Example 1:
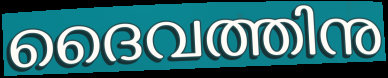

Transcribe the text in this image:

ദൈവത്തിനു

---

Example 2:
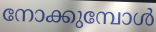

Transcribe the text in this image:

നോക്കുമ്പോൾ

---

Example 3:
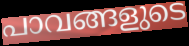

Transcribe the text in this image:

പാവങ്ങളുടെ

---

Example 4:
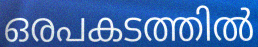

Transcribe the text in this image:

ഒരപകടത്തിൽ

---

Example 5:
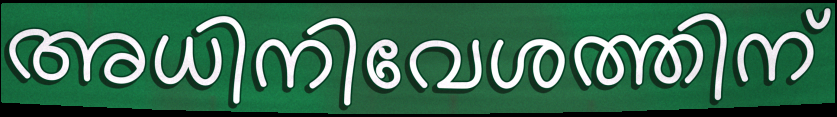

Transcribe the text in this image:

അധിനിവേശത്തിന്